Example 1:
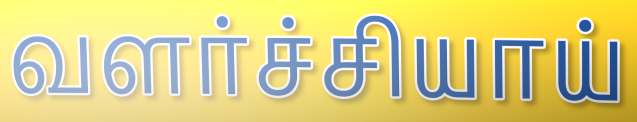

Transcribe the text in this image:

வளர்ச்சியாய்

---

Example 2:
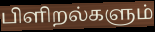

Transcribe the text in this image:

பிளிறல்களும்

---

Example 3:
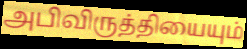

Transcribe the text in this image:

அபிவிருத்தியையும்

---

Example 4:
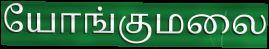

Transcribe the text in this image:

யோங்குமலை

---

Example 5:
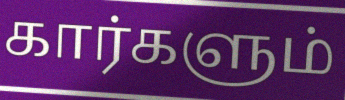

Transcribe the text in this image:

கார்களும்